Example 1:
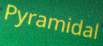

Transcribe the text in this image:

Pyramidal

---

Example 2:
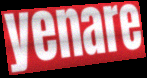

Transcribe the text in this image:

yenare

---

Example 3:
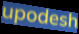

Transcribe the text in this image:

upodesh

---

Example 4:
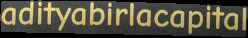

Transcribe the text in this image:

adityabirlacapital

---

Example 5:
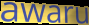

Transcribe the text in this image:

awaru